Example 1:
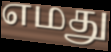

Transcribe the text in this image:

எமது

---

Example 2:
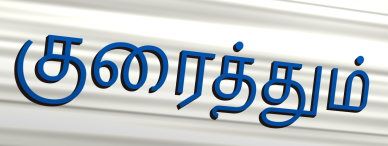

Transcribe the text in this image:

குரைத்தும்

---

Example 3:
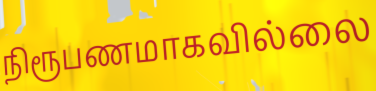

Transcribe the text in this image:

நிரூபணமாகவில்லை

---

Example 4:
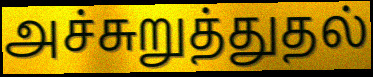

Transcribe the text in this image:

அச்சுறுத்துதல்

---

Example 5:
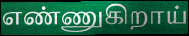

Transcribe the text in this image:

எண்ணுகிறாய்